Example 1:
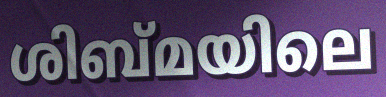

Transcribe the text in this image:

ശിബ്മയിലെ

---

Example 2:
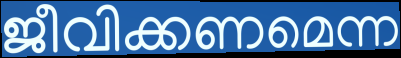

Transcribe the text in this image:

ജീവിക്കണമെന്ന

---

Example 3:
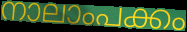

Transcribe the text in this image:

നാലാംപക്കം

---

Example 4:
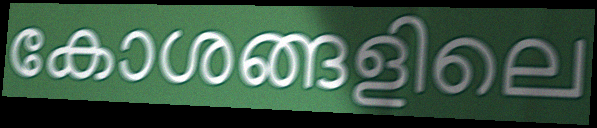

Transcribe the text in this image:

കോശങ്ങളിലെ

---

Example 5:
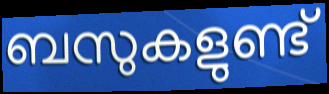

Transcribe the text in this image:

ബസുകളുണ്ട്